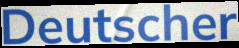
Deutscher